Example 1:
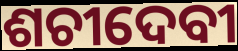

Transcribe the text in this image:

ଶଚୀଦେବୀ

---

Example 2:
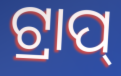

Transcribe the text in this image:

ଟ୍ରାପ୍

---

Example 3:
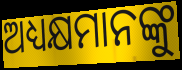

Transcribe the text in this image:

ଅଧ୍ୟକ୍ଷମାନଙ୍କୁ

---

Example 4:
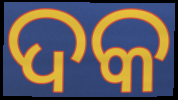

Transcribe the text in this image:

ଦକ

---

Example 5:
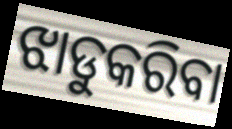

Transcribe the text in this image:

ଝାଡୁକରିବା